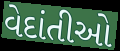
વેદાંતીઓ